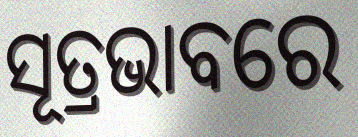
ସୂତ୍ରଭାବରେ